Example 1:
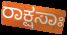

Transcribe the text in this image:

ರಾಕ್ಷಸಾಃ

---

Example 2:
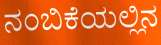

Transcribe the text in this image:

ನಂಬಿಕೆಯಲ್ಲಿನ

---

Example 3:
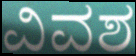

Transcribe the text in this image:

ವಿವಶ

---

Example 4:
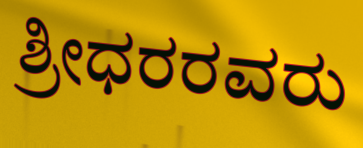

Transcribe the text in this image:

ಶ್ರೀಧರರವರು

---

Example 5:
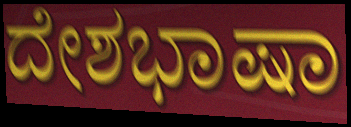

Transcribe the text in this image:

ದೇಶಭಾಷಾ